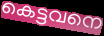
കെട്ടവനെ